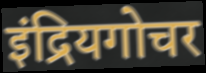
इंद्रियगोचर